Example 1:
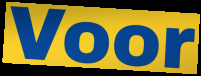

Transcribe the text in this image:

Voor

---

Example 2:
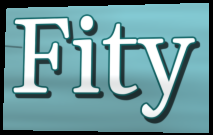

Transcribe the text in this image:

Fity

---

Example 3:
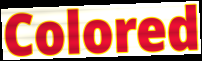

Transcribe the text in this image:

Colored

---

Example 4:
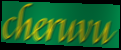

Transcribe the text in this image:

cheruvu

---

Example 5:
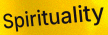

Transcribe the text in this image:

Spirituality